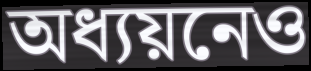
অধ্যয়নেও